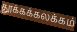
தூக்கக்கலக்கம்